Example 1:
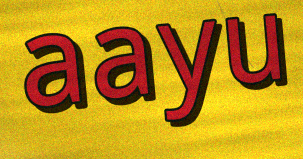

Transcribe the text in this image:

aayu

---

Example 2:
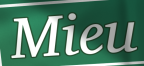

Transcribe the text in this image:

Mieu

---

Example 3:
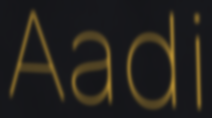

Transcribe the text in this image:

Aadi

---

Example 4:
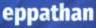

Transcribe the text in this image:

eppathan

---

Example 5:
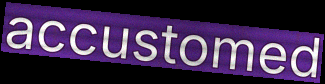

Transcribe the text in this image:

accustomed